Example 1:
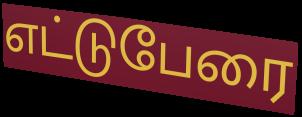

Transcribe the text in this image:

எட்டுபேரை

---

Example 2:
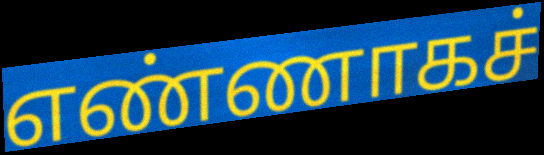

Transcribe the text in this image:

எண்ணாகச்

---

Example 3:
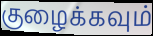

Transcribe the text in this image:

குழைக்கவும்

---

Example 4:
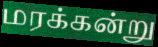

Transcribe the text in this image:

மரக்கன்று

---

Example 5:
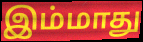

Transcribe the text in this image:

இம்மாது